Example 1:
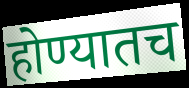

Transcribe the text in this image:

होण्यातच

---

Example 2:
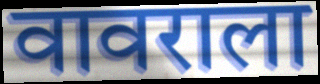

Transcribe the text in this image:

वावराला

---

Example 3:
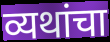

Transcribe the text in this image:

व्यथांचा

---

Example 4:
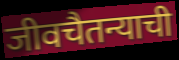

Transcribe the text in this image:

जीवचैतन्याची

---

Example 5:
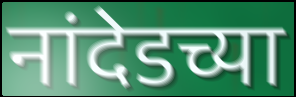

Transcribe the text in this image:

नांदेडच्या